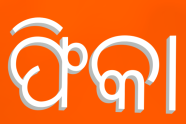
ଫିକା